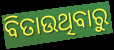
ବିତାଉଥିବାରୁ